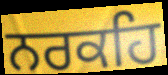
ਨਰਕਹਿ